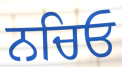
ਨਚਿਓ